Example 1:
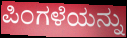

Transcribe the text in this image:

ಪಿಂಗಳೆಯನ್ನು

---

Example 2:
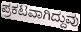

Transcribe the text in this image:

ಪ್ರಕಟವಾಗಿದ್ದುವು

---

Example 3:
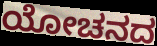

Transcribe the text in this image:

ಯೋಚನದ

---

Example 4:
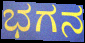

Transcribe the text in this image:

ಭಗನ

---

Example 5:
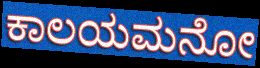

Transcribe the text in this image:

ಕಾಲಯಮನೋ